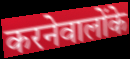
करनेवालोंके